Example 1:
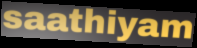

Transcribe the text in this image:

saathiyam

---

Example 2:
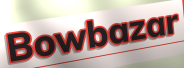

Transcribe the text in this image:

Bowbazar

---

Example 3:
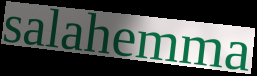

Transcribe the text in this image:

salahemma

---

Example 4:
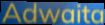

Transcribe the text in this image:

Adwaita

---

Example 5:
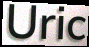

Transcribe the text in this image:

Uric